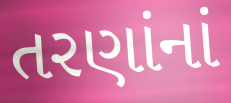
તરણાંનાં